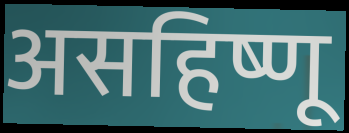
असहिष्णू